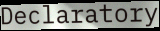
Declaratory